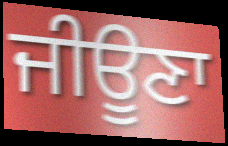
ਜੀਊਣਾ